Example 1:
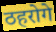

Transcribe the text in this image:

ठहरोगे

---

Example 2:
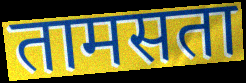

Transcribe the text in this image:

तामसता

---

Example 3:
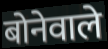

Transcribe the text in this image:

बोनेवाले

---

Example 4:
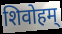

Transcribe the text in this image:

शिवोहम्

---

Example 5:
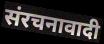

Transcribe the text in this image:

संरचनावादी